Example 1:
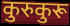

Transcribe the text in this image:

कुरुकुरू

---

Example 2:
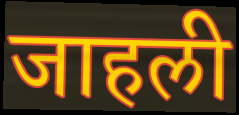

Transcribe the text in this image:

जाहली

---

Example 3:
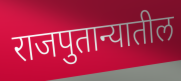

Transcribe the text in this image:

राजपुतान्यातील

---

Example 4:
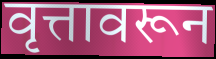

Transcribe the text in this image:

वृत्तावरून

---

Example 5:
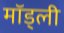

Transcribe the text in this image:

मॉड्ली